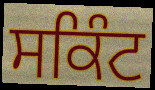
ਸਕਿੰਟ